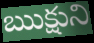
ఋక్షుని